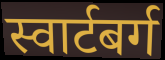
स्वार्टबर्ग